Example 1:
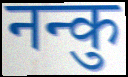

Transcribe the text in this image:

नन्कु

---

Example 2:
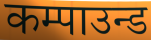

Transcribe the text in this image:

कम्पाउन्ड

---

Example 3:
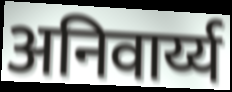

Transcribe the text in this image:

अनिवार्य्य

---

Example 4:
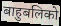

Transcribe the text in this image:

बाहुबलिको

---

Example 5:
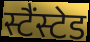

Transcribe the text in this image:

स्टैंस्टेड